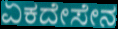
ಏಕದೇಸೇನ